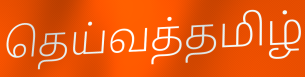
தெய்வத்தமிழ்